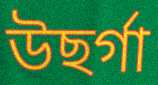
উছৰ্গা